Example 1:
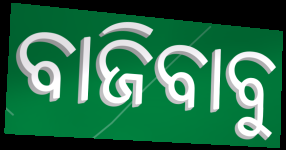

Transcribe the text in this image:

ବାଜିବାବୁ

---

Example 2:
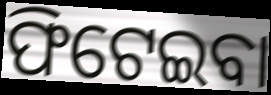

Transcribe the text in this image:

ଫିଟେଇବା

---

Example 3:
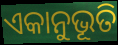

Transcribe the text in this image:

ଏକାନୁଭୂତି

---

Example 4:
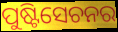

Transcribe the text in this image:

ପୁଷ୍ଟିସେଚନର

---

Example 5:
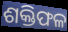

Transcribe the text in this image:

ଶକ୍ତିଫଳ